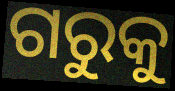
ଗରୁକୁ